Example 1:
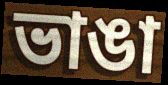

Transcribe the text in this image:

ভাঙা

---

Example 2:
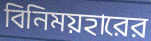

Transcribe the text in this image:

বিনিময়হারের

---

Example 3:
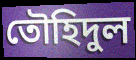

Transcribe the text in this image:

তৌহিদুল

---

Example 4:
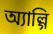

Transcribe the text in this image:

অ্যাল্গি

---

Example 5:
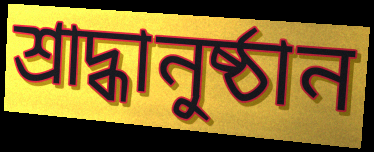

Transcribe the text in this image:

শ্রাদ্ধানুষ্ঠান